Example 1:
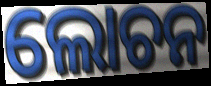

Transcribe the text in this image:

ଲୋଚନ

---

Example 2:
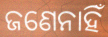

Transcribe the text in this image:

ଜଣେନାହିଁ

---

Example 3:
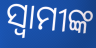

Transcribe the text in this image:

ସ୍ବାମୀଙ୍କ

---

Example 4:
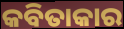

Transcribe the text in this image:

କବିତାକାର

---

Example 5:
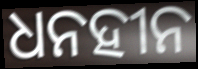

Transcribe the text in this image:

ଧନହୀନ